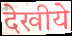
देखीये